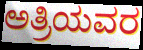
ಅತ್ರಿಯವರ